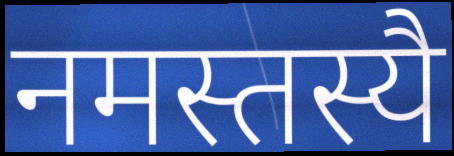
नमस्तस्यै